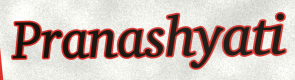
Pranashyati